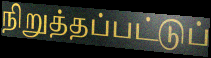
நிறுத்தப்பட்டுப்